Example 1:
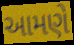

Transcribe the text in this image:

આમણે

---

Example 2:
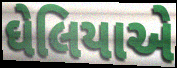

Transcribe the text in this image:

ઘેલિયાએ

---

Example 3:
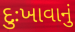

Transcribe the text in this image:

દુઃખાવાનું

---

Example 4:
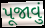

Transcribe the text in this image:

પૂજાવું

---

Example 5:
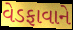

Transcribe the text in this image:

વેડફાવાને